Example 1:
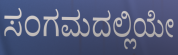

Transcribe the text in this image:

ಸಂಗಮದಲ್ಲಿಯೇ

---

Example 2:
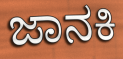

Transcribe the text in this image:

ಜಾನಕಿ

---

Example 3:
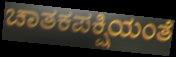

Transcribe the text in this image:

ಚಾತಕಪಕ್ಷಿಯಂತೆ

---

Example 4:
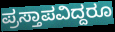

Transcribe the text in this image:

ಪ್ರಸ್ತಾಪವಿದ್ದರೂ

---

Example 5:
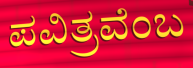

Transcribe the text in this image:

ಪವಿತ್ರವೆಂಬ